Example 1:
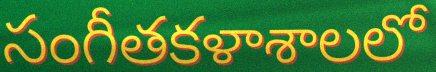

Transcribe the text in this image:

సంగీతకళాశాలలో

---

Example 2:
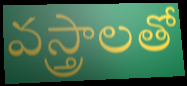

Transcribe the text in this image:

వస్త్రాలతో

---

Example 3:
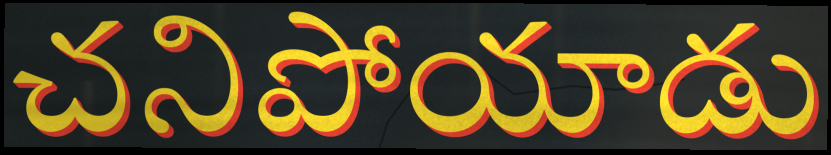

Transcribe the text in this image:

చనిపోయాడు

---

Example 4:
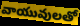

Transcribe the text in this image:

వాయువులతో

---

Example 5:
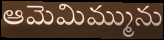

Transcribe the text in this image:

ఆమెమిమ్మును